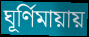
ঘূর্ণিমায়ায়